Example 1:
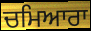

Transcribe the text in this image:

ਚਮਿਆਰਾ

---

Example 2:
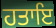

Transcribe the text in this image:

ਹਤਾਇ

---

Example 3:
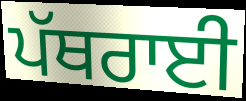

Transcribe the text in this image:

ਪੱਥਰਾਈ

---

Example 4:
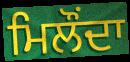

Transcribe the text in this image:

ਮਿਲੌਂਦਾ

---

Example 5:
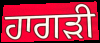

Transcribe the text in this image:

ਹਾਗੜੀ